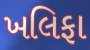
ખલિફા